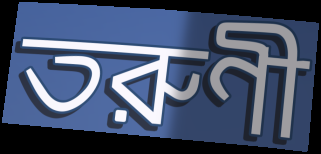
তৰুণী